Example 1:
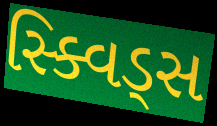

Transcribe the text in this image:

સ્ક્વિડ્સ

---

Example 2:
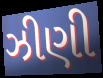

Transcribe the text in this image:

ઝીણી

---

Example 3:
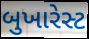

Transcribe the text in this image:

બુખારેસ્ટ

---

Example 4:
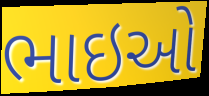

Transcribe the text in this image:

ભાઇઓ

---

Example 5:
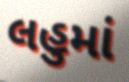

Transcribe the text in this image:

લહુમાં